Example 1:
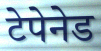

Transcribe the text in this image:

टेपेनेड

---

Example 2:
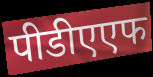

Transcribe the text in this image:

पीडीएएफ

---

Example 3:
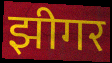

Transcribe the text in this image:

झीगर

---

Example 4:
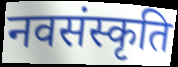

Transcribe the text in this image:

नवसंस्कृति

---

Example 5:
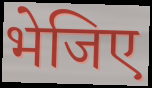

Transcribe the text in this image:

भेजिए